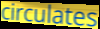
circulates